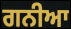
ਗਨੀਆ